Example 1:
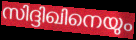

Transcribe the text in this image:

സിദ്ദിഖിനെയും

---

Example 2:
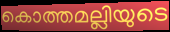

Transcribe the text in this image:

കൊത്തമല്ലിയുടെ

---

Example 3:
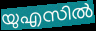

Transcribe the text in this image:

യുഎസിൽ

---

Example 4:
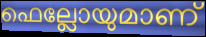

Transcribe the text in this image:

ഫെല്ലോയുമാണ്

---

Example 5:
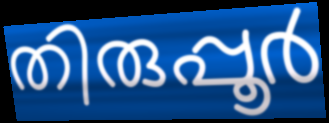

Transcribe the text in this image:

തിരുപ്പൂർ